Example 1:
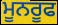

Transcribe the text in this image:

ਮੂਨਰੂਫ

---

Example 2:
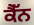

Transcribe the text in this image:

ਕੈੱਨ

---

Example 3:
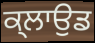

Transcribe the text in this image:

ਕ੍ਲਾਉਡ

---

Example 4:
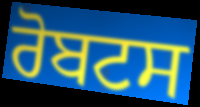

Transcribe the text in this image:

ਰੋਬਟਸ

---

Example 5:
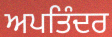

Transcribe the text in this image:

ਅਪਤਿੰਦਰ